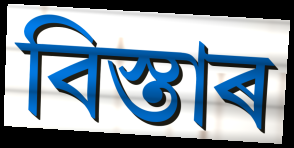
বিস্তাৰ